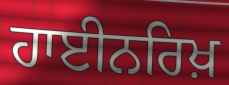
ਹਾਈਨਰਿਖ਼